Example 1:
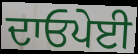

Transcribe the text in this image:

ਦਾਓਪੇਈ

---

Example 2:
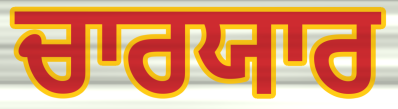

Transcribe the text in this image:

ਚਾਰਯਾਰ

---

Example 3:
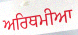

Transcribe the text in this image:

ਅਰਿਥਮੀਆ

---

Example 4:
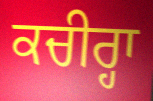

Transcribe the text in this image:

ਕਚੀਰ੍ਹਾ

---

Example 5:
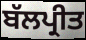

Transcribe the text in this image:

ਬੱਲਪ੍ਰੀਤ